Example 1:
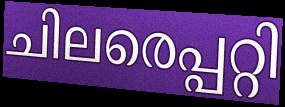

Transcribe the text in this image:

ചിലരെപ്പറ്റി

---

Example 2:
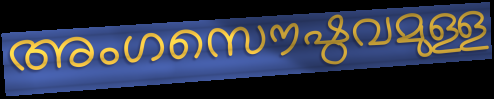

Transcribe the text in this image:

അംഗസൌഷ്ഠവമുള്ള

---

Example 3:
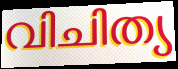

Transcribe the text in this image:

വിചിത്യ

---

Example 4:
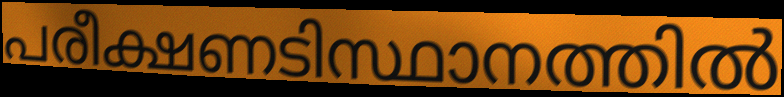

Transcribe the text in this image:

പരീക്ഷണടിസ്ഥാനത്തിൽ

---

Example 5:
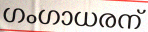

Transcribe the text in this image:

ഗംഗാധരന്